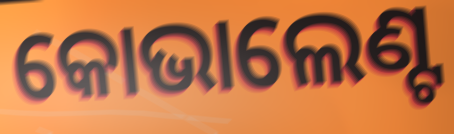
କୋଭାଲେଣ୍ଟ